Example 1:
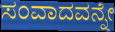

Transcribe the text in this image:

ಸಂವಾದವನ್ನೇ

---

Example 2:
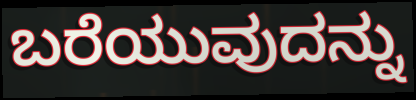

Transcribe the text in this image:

ಬರೆಯುವುದನ್ನು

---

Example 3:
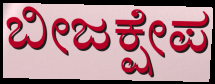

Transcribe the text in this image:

ಬೀಜಕ್ಷೇಪ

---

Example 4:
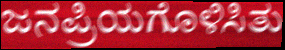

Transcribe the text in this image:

ಜನಪ್ರಿಯಗೊಳಿಸಿತು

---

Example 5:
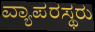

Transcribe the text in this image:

ವ್ಯಾಪರಸ್ಥರು